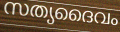
സത്യദൈവം